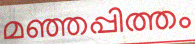
മഞ്ഞപ്പിത്തം